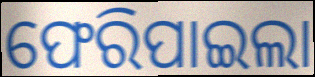
ଫେରିପାଇଲା